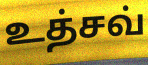
உத்சவ்